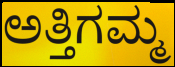
ಅತ್ತಿಗಮ್ಮ